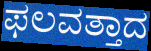
ಫಲವತ್ತಾದ